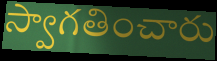
స్వాగతించారు